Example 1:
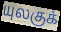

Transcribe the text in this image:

யுலகுக்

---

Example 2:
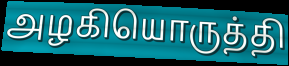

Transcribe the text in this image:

அழகியொருத்தி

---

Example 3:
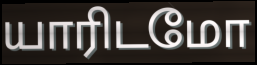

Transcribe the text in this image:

யாரிடமோ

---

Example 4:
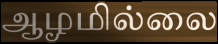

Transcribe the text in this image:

ஆழமில்லை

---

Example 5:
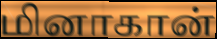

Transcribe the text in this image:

மினாகான்